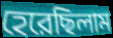
হেরেছিলাম